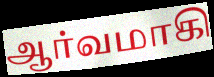
ஆர்வமாகி